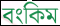
বংকিম